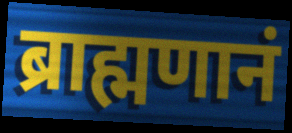
ब्राह्मणानं